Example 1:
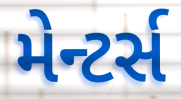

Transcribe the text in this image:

મેન્ટર્સ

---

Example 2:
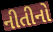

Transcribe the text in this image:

નીતીનો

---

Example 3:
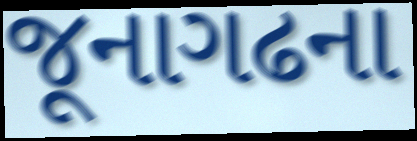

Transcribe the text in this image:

જૂનાગઢના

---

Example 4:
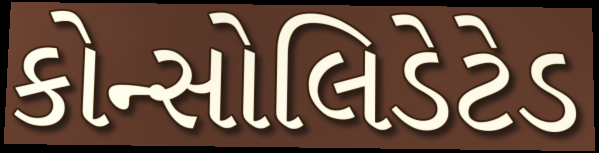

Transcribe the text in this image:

કોન્સોલિડેટેડ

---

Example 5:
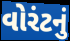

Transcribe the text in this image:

વોરંટનું